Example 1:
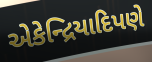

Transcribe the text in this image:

એકેન્દ્રિયાદિપણે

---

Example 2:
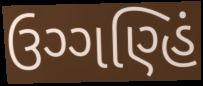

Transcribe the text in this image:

ઉગ્ગણ્હિં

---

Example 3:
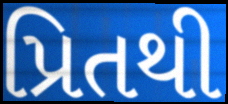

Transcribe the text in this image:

પ્રિતથી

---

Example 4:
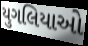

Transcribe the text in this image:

યુગલિયાઓ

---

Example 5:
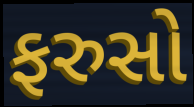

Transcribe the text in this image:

ફરુસો